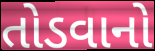
તોડવાનો